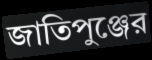
জাতিপুঞ্জের